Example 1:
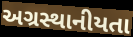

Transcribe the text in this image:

અગ્રસ્થાનીયતા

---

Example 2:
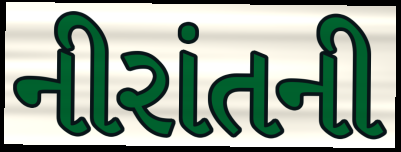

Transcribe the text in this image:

નીરાંતની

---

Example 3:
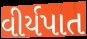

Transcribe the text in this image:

વીર્યપાત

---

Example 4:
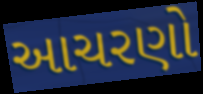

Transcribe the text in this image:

આચરણો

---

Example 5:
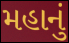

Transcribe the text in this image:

મહાનું